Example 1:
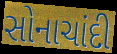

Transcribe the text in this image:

સોનાચાંદી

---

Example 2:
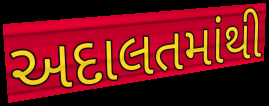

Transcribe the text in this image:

અદાલતમાંથી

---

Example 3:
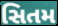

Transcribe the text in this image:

સિતમ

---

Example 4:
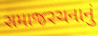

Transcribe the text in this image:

સમાજરચનાનું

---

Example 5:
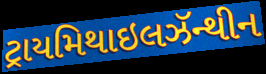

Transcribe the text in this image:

ટ્રાયમિથાઇલઝૅન્થીન